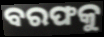
ବରଫକୁ